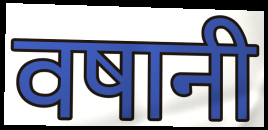
वषानी